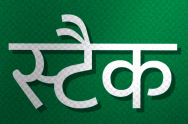
स्टैक